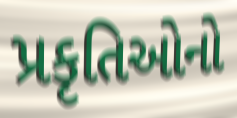
પ્રકૃતિઓનો